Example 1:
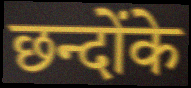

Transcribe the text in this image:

छन्दोंके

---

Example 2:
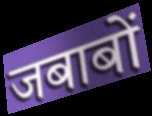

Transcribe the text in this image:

जबाबों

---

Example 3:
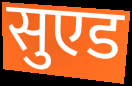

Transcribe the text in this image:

सुएड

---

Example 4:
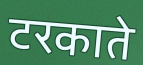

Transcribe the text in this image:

टरकाते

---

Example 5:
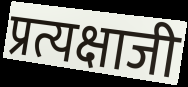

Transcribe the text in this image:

प्रत्यक्षाजी